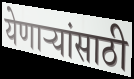
येणाऱ्यांसाठी